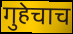
गुहेचाच